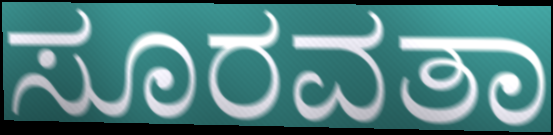
ಸೂರವತಾ